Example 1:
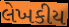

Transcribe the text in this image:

લેખકીય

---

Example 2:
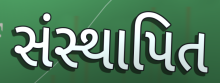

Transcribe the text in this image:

સંસ્થાપિત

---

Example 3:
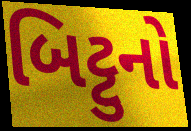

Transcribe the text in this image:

બિટ્ટુનો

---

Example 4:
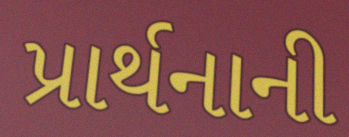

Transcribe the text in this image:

પ્રાર્થનાની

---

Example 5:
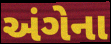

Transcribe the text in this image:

અંગેના